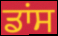
ਡਾਂਸ